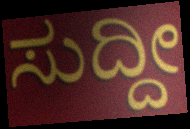
ಸುದ್ದೀ